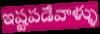
ఇష్టపడేవాళ్ళు